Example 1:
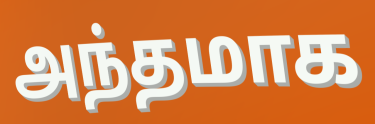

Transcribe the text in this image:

அந்தமாக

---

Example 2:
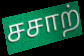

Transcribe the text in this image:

சசாற்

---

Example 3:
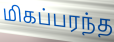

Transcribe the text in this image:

மிகப்பரந்த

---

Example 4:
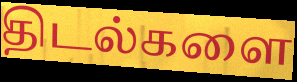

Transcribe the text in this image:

திடல்களை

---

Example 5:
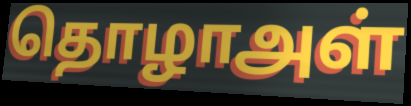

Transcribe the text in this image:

தொழாஅள்